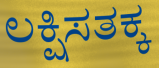
ಲಕ್ಷಿಸತಕ್ಕ